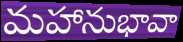
మహానుభావా